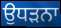
ਉਧੜਨਾ